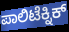
ಪಾಲಿಟೆಕ್ನಿಕ್